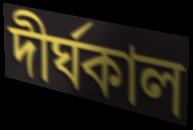
দীৰ্ঘকাল